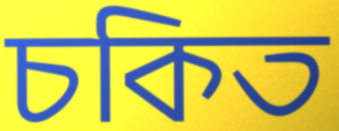
চকিত